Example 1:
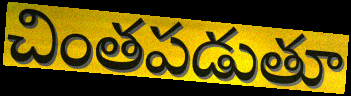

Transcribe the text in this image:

చింతపడుతూ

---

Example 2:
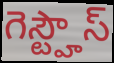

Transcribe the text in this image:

గెస్ట్హౌస్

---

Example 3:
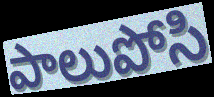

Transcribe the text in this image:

పాలుపోసి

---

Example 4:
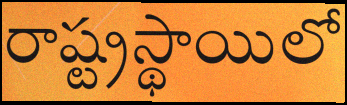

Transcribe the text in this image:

రాష్ట్రస్థాయిలో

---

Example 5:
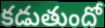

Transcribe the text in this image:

కడుతుందో